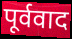
पूर्ववाद